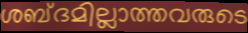
ശബ്ദമില്ലാത്തവരുടെ